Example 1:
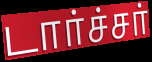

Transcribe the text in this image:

டார்ச்சர்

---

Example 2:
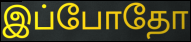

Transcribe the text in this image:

இப்போதோ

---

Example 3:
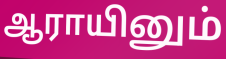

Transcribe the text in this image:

ஆராயினும்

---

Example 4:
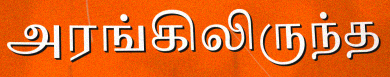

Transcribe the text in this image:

அரங்கிலிருந்த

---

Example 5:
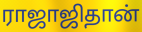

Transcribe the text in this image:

ராஜாஜிதான்